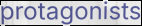
protagonists